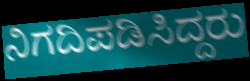
ನಿಗದಿಪಡಿಸಿದ್ದರು